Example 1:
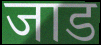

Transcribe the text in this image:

जाड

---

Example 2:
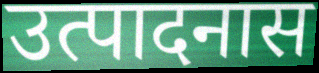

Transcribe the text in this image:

उत्पादनास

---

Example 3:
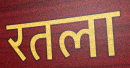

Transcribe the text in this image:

रतला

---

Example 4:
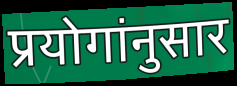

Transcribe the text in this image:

प्रयोगांनुसार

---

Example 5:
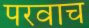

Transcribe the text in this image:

परवाच